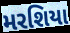
મરશિયા